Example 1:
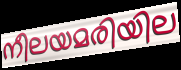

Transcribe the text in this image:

നീലയമരിയില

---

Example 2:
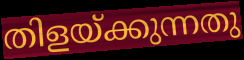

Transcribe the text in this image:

തിളയ്ക്കുന്നതു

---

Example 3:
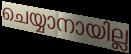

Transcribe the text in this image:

ചെയ്യാനായില്ല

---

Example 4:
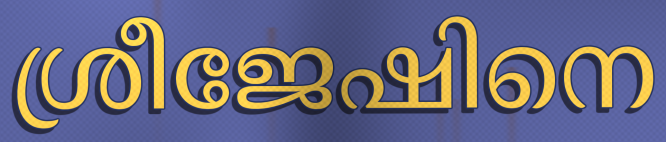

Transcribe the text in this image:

ശ്രീജേഷിനെ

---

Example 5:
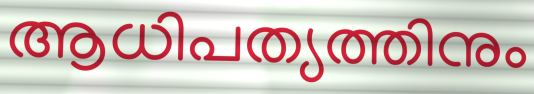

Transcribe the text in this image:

ആധിപത്യത്തിനും